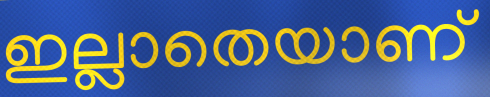
ഇല്ലാതെയാണ്